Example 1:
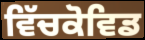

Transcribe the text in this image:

ਵਿੱਚਕੋਵਿਡ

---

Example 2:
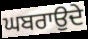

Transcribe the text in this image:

ਘਬਰਾਉਦੇ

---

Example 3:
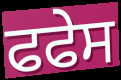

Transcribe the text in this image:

ਫਫੇਸ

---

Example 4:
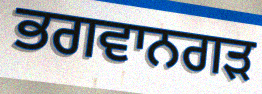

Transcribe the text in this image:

ਭਗਵਾਨਗੜ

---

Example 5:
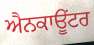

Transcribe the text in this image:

ਐਨਕਾਊਂਟਰ